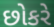
છોકરે